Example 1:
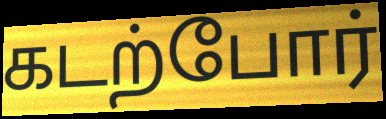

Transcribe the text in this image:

கடற்போர்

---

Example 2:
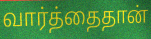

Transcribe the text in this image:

வார்த்தைதான்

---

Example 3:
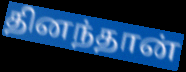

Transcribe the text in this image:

தினந்தான்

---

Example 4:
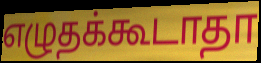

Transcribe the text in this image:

எழுதக்கூடாதா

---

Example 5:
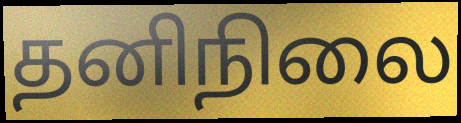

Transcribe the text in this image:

தனிநிலை